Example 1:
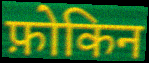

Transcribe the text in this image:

फ़ोकिन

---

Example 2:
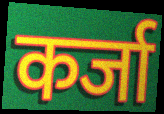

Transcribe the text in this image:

कर्जा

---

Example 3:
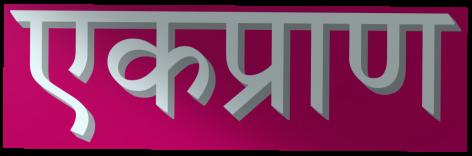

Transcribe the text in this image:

एकप्राण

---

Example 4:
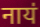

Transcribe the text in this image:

नाय॑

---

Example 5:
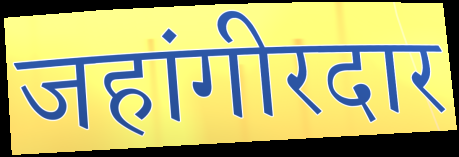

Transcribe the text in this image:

जहांगीरदार